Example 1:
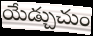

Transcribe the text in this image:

యేడ్చుచుం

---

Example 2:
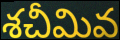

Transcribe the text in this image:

శచీమివ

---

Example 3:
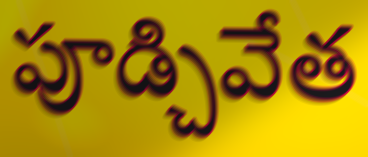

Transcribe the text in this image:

పూడ్చివేత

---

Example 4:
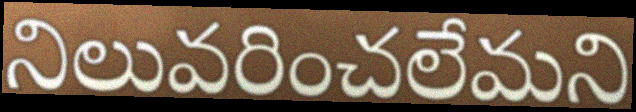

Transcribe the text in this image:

నిలువరించలేమని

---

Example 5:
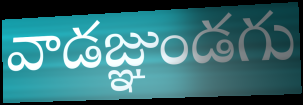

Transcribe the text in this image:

వాడజ్ఞుండగు